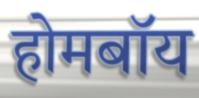
होमबॉय